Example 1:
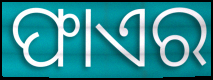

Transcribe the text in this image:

ଫାଏର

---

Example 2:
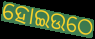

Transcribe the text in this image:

ହୋଇଉଠେ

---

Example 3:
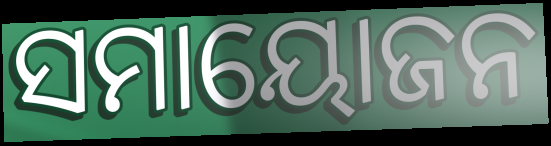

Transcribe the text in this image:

ସମାୟୋଜନ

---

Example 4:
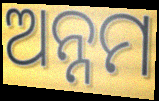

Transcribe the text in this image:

ଅନ୍ନମ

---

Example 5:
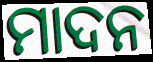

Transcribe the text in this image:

ମାଦନ